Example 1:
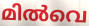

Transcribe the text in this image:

മിൽവെ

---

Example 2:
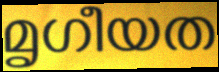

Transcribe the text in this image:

മൃഗീയത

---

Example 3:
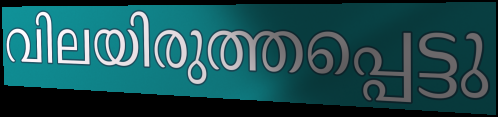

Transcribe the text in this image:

വിലയിരുത്തപ്പെട്ടു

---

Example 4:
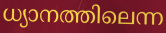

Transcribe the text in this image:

ധ്യാനത്തിലെന്ന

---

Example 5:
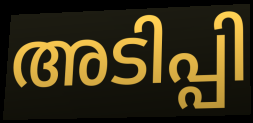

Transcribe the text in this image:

അടിപ്പി